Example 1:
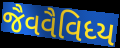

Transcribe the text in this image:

જૈવવૈવિધ્ય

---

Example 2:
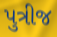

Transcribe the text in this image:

પુત્રીજ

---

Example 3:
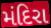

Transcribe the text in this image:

મંદિરા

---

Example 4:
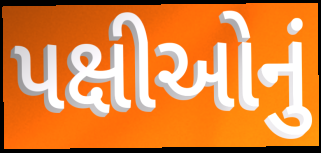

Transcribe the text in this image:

પક્ષીઓનું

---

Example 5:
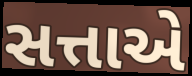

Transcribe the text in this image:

સત્તાએ